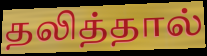
தலித்தால்